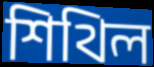
শিথিল